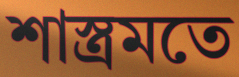
শাস্ত্রমতে